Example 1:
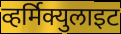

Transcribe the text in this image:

व्हर्मिक्युलाइट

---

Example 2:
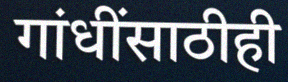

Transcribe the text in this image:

गांधींसाठीही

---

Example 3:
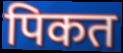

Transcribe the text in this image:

पिकत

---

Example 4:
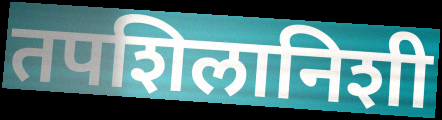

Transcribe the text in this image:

तपशिलानिशी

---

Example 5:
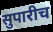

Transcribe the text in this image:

सुपारीच